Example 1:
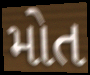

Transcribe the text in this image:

મોત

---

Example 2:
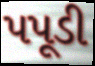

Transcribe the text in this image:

પપૂડી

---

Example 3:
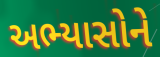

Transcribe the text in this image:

અભ્યાસોને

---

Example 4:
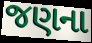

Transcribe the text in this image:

જણના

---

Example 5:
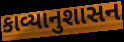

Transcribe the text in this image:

કાવ્યાનુશાસન